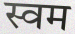
स्वम